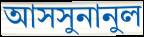
আসসুনানুল